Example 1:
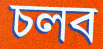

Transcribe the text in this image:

চলব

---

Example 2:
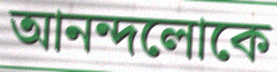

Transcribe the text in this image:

আনন্দলোকে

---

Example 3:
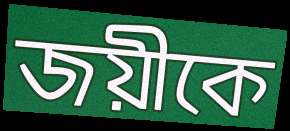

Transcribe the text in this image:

জয়ীকে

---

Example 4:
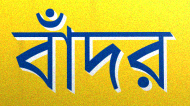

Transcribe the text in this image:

বাঁদর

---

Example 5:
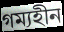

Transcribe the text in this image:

গম্যহীন